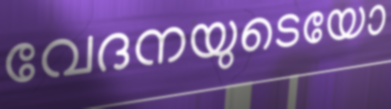
വേദനയുടെയോ